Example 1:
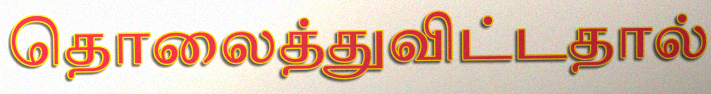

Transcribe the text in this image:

தொலைத்துவிட்டதால்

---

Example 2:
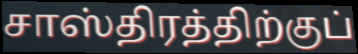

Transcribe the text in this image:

சாஸ்திரத்திற்குப்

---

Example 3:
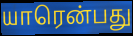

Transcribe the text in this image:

யாரென்பது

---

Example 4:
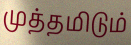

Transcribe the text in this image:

முத்தமிடும்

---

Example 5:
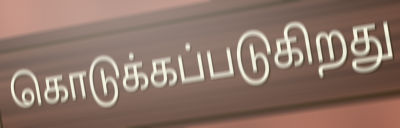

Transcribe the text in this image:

கொடுக்கப்படுகிறது